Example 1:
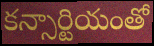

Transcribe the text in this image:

కన్సార్టియంతో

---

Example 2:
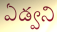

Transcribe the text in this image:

ఏడ్వని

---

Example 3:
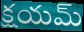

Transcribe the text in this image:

క్షయమ్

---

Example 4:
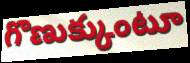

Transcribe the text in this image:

గొణుక్కుంటూ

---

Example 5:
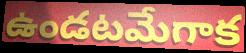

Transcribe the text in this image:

ఉండటమేగాక